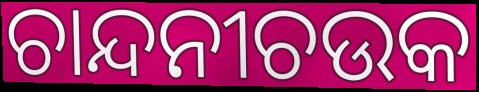
ଚାନ୍ଦନୀଚଉକ